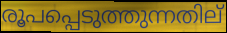
രൂപപ്പെടുത്തുന്നതില്